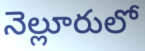
నెల్లూరులో